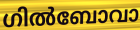
ഗിൽബോവാ